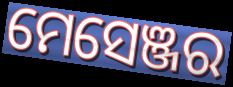
ମେସେଞ୍ଜର